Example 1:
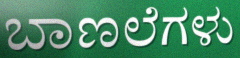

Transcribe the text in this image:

ಬಾಣಲೆಗಳು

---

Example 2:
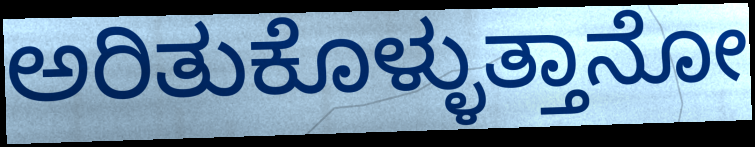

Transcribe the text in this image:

ಅರಿತುಕೊಳ್ಳುತ್ತಾನೋ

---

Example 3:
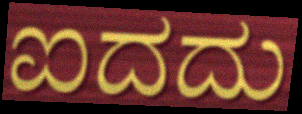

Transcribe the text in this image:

ಐದದು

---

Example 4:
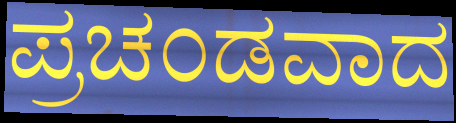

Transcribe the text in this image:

ಪ್ರಚಂಡವಾದ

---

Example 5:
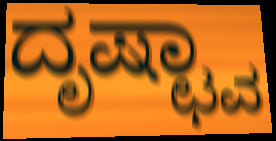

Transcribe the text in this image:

ದೃಷ್ಟ್ವಾ